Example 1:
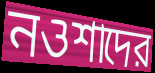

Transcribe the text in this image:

নওশাদের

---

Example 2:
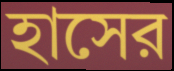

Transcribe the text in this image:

হাসের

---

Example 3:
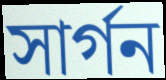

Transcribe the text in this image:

সার্গন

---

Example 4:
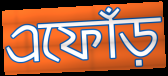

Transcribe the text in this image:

এফোঁড়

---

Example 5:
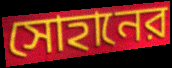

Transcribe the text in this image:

সোহানের